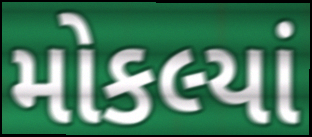
મોકલ્યાં